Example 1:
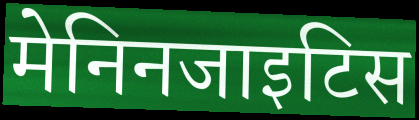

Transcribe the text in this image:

मेनिनजाइटिस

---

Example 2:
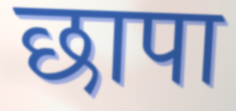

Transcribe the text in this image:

छापा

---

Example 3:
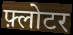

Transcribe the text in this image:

फ़्लोटर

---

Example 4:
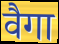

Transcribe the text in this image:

वैगा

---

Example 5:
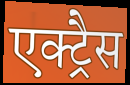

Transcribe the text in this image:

एक्ट्रैस